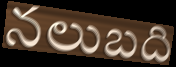
నలుబది